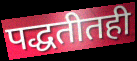
पद्धतीतही